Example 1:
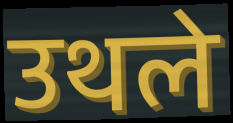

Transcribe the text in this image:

उथले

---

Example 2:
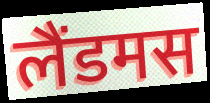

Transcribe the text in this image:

लैंडमस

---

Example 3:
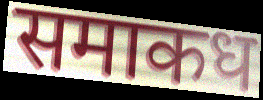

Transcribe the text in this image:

समाकध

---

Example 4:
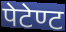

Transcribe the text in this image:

पेटेण्ट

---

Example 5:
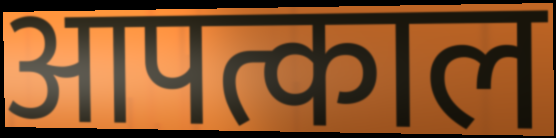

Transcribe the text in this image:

आपत्काल